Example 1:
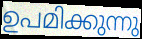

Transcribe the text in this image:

ഉപമിക്കുന്നു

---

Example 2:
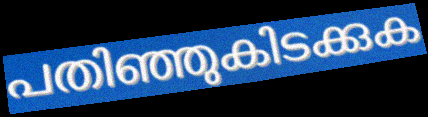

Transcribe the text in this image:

പതിഞ്ഞുകിടക്കുക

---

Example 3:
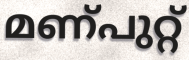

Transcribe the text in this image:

മണ്പുറ്റ്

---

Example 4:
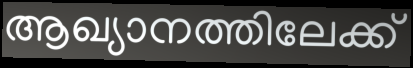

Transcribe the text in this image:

ആഖ്യാനത്തിലേക്ക്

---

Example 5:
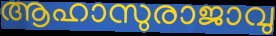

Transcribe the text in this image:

ആഹാസുരാജാവു